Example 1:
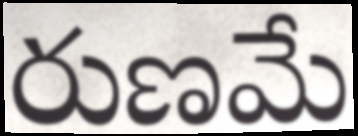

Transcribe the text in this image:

రుణమే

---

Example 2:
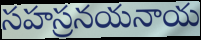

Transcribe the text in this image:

సహస్రనయనాయ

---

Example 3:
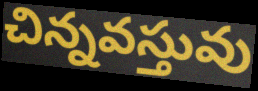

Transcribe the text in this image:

చిన్నవస్తువు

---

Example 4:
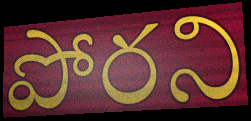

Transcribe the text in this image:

పోరని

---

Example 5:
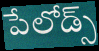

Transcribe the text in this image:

పేలోడ్స్